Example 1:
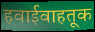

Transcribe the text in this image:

हवाईवाहतूक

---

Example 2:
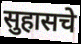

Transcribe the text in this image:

सुहासचे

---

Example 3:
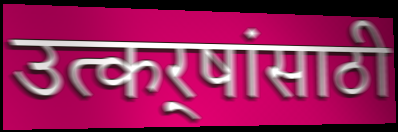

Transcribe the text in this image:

उत्कर्षांसाठी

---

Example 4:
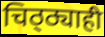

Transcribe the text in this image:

चिठ्ठ्याही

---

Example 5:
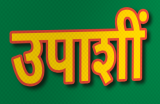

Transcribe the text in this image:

उपाशीं